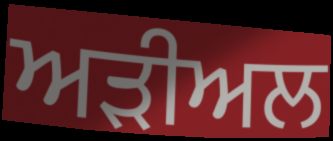
ਅੜੀਅਲ